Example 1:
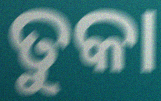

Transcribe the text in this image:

ତୁକା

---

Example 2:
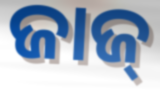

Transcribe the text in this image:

ଜାଜ୍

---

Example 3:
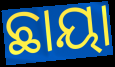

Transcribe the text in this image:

ଛାୟା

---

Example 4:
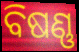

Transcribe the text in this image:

ବିଷଣ୍ଣ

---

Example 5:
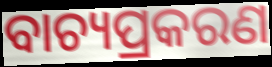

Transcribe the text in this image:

ବାଚ୍ୟପ୍ରକରଣ